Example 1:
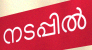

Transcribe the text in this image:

നടപ്പിൽ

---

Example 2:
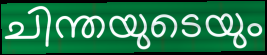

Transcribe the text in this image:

ചിന്തയുടെയും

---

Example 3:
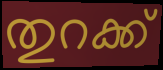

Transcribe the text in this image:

തുറക്ക്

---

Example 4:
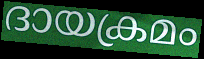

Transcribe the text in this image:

ദായക്രമം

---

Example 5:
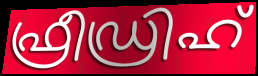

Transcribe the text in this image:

ഫ്രീഡ്രിഹ്